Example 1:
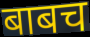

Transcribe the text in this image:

बाबच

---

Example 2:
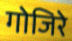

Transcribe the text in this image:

गोजिरे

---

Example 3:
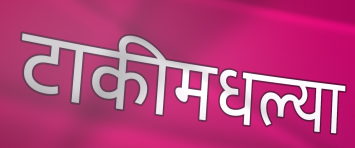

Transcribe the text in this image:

टाकीमधल्या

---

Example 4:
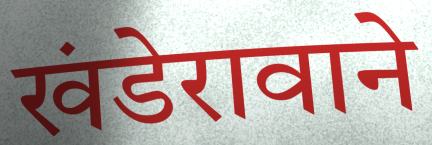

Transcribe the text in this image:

खंडेरावाने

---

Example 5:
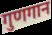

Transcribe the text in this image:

गुणगान